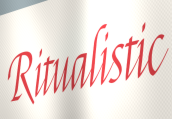
Ritualistic